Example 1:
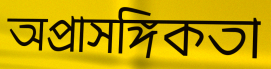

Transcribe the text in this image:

অপ্রাসঙ্গিকতা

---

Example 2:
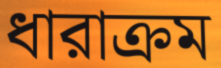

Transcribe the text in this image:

ধারাক্রম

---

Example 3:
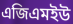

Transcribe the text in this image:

এজিএমইউ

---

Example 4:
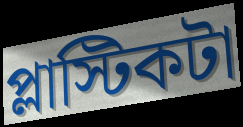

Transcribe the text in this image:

প্লাস্টিকটা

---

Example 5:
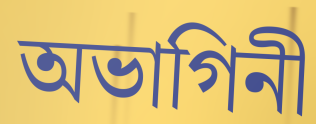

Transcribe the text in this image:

অভাগিনী